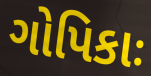
ગોપિકાઃ